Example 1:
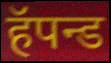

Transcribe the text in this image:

हॅपन्ड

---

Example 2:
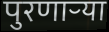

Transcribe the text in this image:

पुरणाऱ्या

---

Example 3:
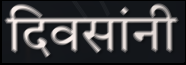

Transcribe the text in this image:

दिवसांनी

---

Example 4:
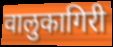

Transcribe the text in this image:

वालुकागिरी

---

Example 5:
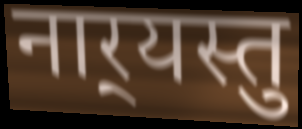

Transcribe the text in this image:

नार्यस्तु